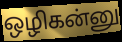
ஒழிகன்னு